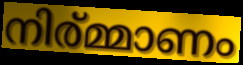
നിര്മ്മാണം